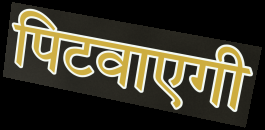
पिटवाएगी